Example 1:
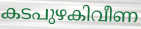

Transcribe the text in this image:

കടപുഴകിവീണ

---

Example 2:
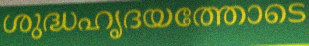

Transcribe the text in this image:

ശുദ്ധഹൃദയത്തോടെ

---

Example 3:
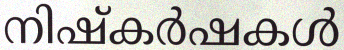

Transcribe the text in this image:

നിഷ്കർഷകൾ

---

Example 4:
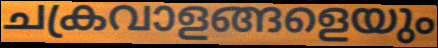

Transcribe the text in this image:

ചക്രവാളങ്ങളെയും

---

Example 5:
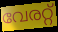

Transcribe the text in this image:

വേരറ്റ്